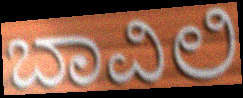
ಬಾವಿಲಿ